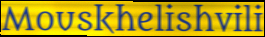
Mouskhelishvili